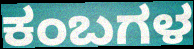
ಕಂಬಗಳ